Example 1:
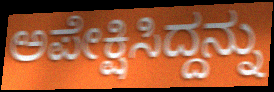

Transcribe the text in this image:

ಅಪೇಕ್ಷಿಸಿದ್ದನ್ನು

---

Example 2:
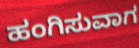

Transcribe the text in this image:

ಹಂಗಿಸುವಾಗ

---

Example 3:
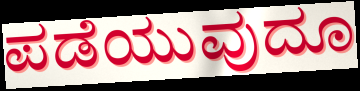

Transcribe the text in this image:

ಪಡೆಯುವುದೂ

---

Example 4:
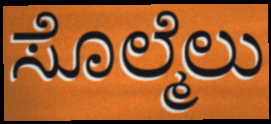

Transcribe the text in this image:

ಸೊಲ್ಮೆಲು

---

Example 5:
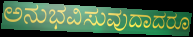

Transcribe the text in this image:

ಅನುಭವಿಸುವುದಾದರೂ